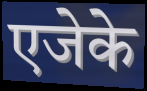
एजेके